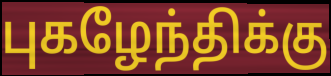
புகழேந்திக்கு